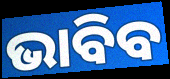
ଭାବିବ